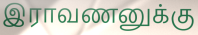
இராவணனுக்கு